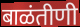
बाळंतीणी